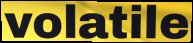
volatile